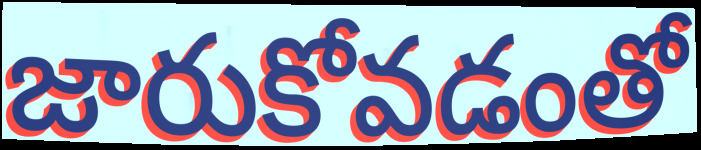
జారుకోవడంతో